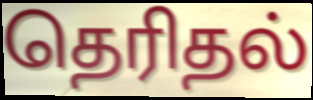
தெரிதல்